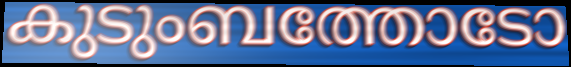
കുടുംബത്തോടോ